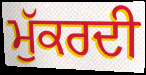
ਮੁੱਕਰਦੀ